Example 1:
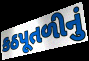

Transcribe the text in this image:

કઠપૂતળીનું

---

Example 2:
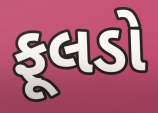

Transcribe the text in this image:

ફૂલડો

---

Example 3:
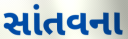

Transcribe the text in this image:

સાંતવના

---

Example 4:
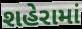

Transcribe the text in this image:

શહેરામાં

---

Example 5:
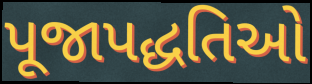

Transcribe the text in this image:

પૂજાપદ્ધતિઓ